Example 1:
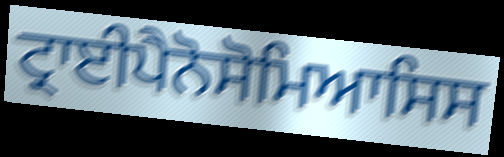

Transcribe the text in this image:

ਟ੍ਰਾਈਪੈਨੋਸੋਮਿਆਸਿਸ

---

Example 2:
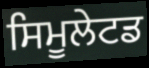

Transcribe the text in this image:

ਸਿਮੂਲੇਟਡ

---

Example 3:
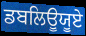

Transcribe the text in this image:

ਡਬਲਿਊਯੂਏ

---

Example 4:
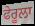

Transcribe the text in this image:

ਫੇਰੂਲਾ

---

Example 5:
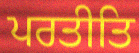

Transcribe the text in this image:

ਪਰਤੀਤਿ